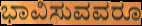
ಭಾವಿಸುವವರೂ